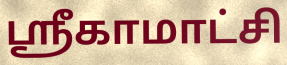
ஸ்ரீகாமாட்சி